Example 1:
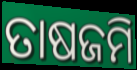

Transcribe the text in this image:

ତାଷଜମି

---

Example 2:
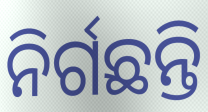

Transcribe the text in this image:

ନିର୍ଗଛନ୍ତି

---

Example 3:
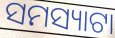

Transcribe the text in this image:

ସମସ୍ୟାଟା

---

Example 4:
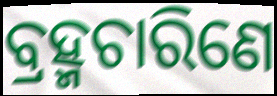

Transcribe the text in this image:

ବ୍ରହ୍ମଚାରିଣେ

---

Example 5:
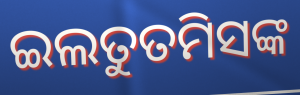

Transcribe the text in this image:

ଇଲତୁତମିସଙ୍କ